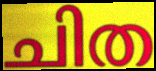
ചിത